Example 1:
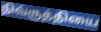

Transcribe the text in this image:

நிவ்ருத்தியை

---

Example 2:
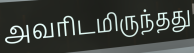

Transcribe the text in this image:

அவரிடமிருந்தது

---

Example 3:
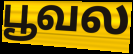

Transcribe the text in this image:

பூவல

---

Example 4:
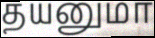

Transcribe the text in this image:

தயனுமா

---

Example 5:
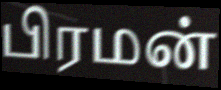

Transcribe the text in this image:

பிரமன்